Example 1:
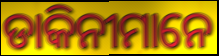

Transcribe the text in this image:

ଡାକିନୀମାନେ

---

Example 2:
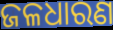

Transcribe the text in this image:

ଜଳଧାରଣ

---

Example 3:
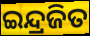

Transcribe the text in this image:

ଇନ୍ଦ୍ରଜିତ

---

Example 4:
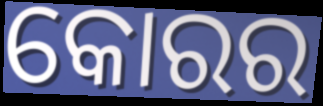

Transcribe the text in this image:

କୋରର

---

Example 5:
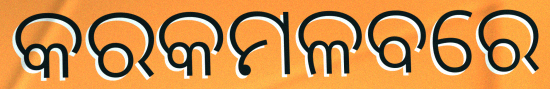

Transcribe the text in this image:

କରକମଳବରେ